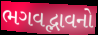
ભગવદ્ભાવનો